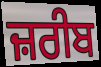
ਜ਼ਰੀਬ